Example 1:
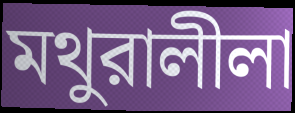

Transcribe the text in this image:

মথুরালীলা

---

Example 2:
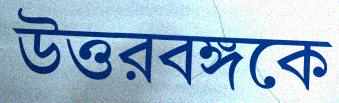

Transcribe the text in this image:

উত্তরবঙ্গকে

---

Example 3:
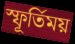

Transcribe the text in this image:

স্ফূর্তিময়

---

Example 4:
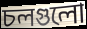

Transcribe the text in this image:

চলগুলো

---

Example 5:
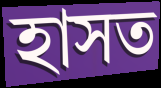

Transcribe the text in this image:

হাসত